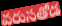
వరుసతోడ